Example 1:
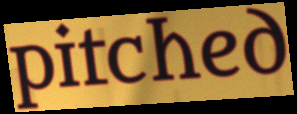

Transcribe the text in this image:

pitched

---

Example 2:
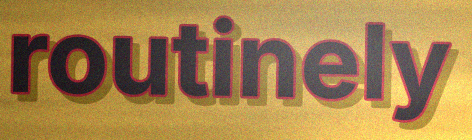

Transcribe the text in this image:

routinely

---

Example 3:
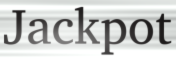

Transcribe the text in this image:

Jackpot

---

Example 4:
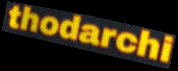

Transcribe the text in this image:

thodarchi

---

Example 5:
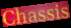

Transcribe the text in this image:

Chassis